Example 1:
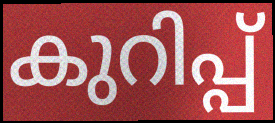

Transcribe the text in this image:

കുറിപ്പ്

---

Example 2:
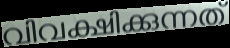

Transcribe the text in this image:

വിവക്ഷിക്കുന്നത്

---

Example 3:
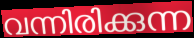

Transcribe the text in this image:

വന്നിരിക്കുന്ന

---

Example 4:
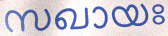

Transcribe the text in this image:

സഖായഃ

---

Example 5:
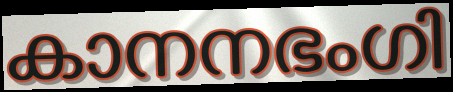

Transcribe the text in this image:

കാനനഭംഗി